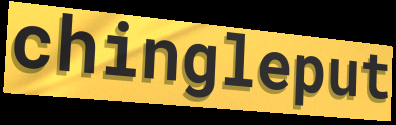
chingleput